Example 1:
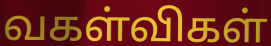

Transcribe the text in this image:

வகள்விகள்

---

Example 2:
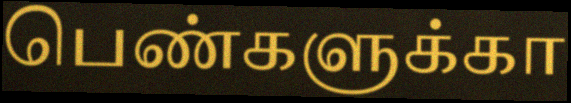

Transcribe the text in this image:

பெண்களுக்கா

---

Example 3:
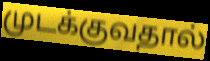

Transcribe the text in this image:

முடக்குவதால்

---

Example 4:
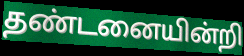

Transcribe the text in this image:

தண்டனையின்றி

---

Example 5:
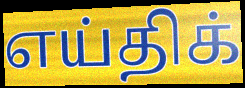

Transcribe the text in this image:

எய்திக்